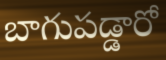
బాగుపడ్డారో